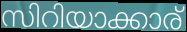
സിറിയാക്കാര്